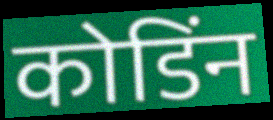
कोडिंन